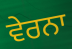
ਵੇਰਨਾ